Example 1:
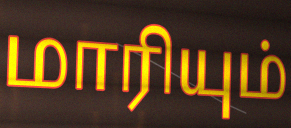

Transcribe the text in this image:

மாரியும்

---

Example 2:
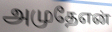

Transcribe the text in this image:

அமுதேஎன்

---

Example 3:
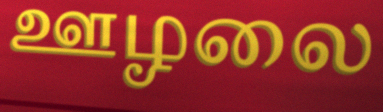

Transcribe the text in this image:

ஊழலை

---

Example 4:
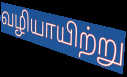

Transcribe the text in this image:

வழியாயிற்று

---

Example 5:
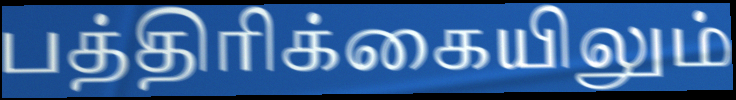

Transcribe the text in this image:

பத்திரிக்கையிலும்